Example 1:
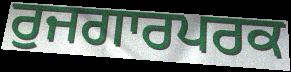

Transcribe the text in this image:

ਰੁਜਗਾਰਪਰਕ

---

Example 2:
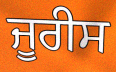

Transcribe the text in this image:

ਜੂਰੀਸ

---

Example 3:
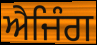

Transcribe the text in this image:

ਐਜਿੰਗ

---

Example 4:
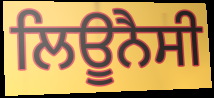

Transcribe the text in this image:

ਲਿਊਨੈਸੀ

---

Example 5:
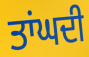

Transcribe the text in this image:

ਤਾਂਘਦੀ